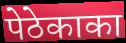
पेठेकाका